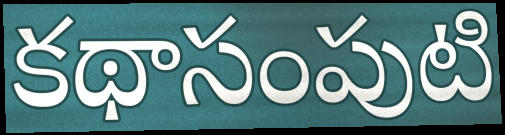
కథాసంపుటి